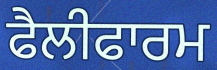
ਫੈਲੀਫਾਰਮ